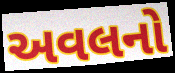
અવલનો